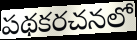
పథకరచనలో